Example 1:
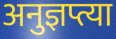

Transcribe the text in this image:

अनुज्ञप्त्या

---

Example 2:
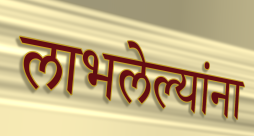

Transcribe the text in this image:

लाभलेल्यांना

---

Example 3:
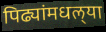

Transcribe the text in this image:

पिढ्यांमधल्या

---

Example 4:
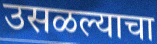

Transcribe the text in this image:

उसळल्याचा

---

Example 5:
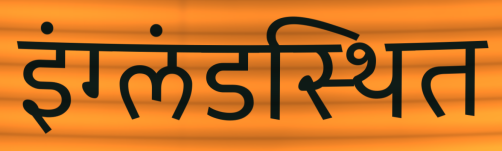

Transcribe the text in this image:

इंग्लंडस्थित